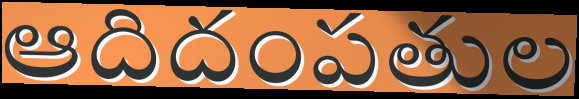
ఆదిదంపతుల